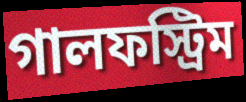
গালফস্ট্রিম